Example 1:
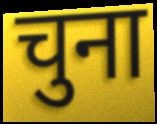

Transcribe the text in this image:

चुना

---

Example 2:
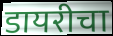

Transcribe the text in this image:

डायरीचा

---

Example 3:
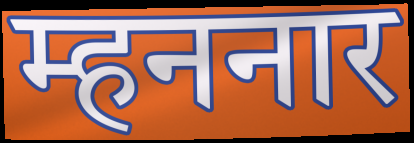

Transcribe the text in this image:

म्हननार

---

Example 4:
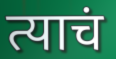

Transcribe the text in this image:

त्याचं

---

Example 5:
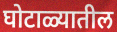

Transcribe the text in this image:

घोटाळ्यातील